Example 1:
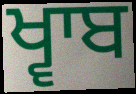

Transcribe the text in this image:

ਖ੍ਵਾਬ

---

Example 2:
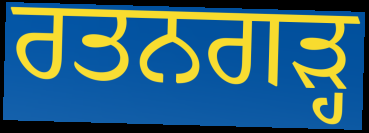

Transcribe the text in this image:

ਰਤਨਗੜ੍ਹ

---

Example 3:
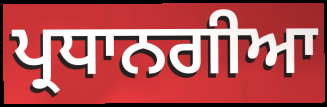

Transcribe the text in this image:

ਪ੍ਰਧਾਨਗੀਆ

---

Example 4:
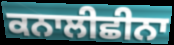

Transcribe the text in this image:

ਕਨਾਲੀਛੀਨਾ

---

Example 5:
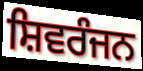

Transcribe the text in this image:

ਸ਼ਿਵਰੰਜਨ